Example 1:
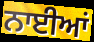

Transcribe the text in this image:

ਨਾਈਆਂ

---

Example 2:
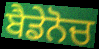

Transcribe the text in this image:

ਬੈਡੇਨੋਚ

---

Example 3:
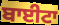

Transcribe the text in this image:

ਬਾਈਟਾ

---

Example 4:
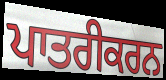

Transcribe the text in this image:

ਪਾਤਰੀਕਰਨ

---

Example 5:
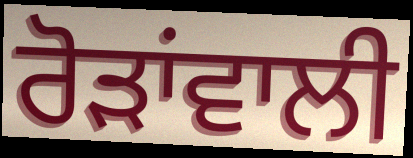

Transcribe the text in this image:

ਰੋੜਾਂਵਾਲੀ